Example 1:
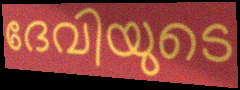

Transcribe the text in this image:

ദേവിയുടെ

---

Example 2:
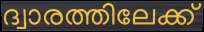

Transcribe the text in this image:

ദ്വാരത്തിലേക്ക്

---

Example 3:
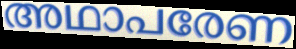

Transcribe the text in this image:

അഥാപരേണ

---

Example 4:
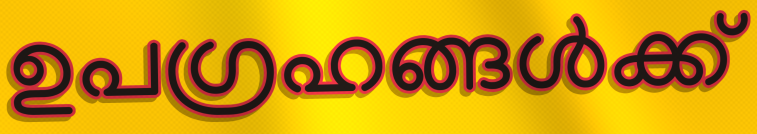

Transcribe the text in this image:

ഉപഗ്രഹങ്ങൾക്ക്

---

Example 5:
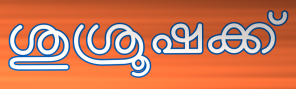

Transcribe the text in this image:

ശുശ്രൂഷക്ക്